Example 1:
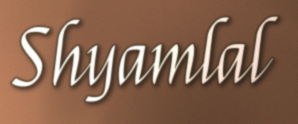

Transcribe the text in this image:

Shyamlal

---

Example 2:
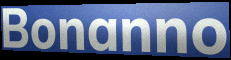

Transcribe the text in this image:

Bonanno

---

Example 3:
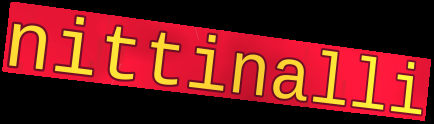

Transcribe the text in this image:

nittinalli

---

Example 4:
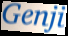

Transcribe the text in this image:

Genji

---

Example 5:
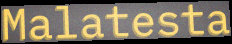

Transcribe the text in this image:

Malatesta